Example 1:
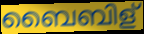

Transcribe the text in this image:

ബൈബിള്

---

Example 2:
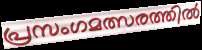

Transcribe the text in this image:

പ്രസംഗമത്സരത്തിൽ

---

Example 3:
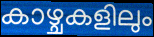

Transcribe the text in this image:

കാഴ്ചകളിലും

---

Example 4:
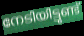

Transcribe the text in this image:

നേടിയിട്ടുണ്ട്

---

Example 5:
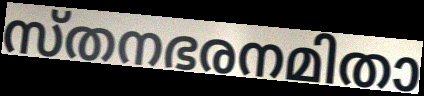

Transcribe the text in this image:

സ്തനഭരനമിതാ